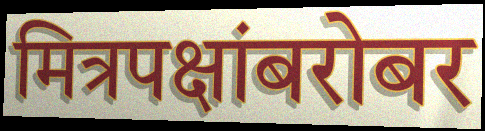
मित्रपक्षांबरोबर